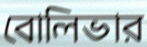
বোলিভার